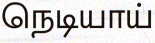
நெடியாய்